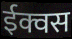
ईक्‍वस